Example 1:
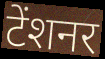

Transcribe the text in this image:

टेंशनर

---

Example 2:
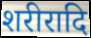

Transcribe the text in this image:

शरीरादि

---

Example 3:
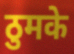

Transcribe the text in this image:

ठुमके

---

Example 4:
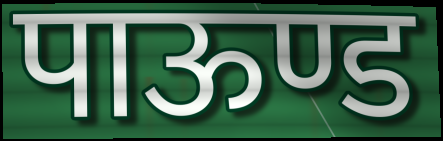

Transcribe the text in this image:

पाऊण्ड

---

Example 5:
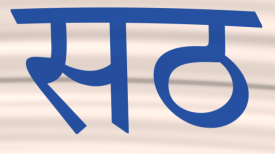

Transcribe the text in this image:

सठ